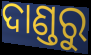
ଦାଣ୍ଡରୁ